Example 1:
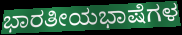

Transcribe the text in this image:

ಭಾರತೀಯಭಾಷೆಗಳ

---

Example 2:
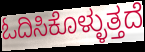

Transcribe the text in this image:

ಓದಿಸಿಕೊಳ್ಳುತ್ತದೆ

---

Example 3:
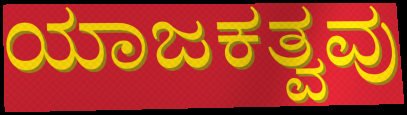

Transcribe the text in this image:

ಯಾಜಕತ್ವವು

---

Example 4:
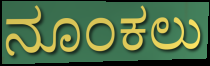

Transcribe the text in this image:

ನೂಂಕಲು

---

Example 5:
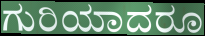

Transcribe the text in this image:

ಗುರಿಯಾದರೂ